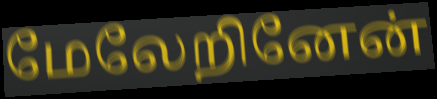
மேலேறினேன்